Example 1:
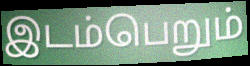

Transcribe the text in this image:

இடம்பெறும்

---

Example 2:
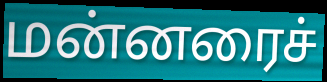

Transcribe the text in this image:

மன்னரைச்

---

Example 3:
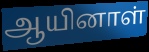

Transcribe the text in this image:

ஆயினாள்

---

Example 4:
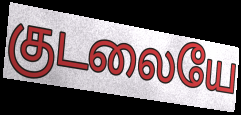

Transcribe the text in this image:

குடலையே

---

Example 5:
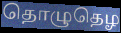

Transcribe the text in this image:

தொழுதெழ